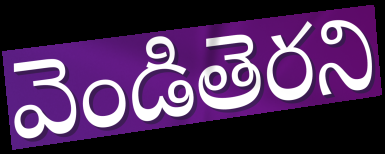
వెండితెరని